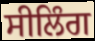
ਸੀਲਿੰਗ